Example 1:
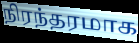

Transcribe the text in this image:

நிரந்தரமாக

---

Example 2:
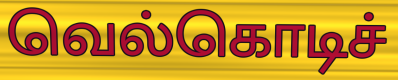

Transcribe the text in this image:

வெல்கொடிச்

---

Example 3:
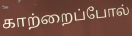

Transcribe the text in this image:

காற்றைப்போல்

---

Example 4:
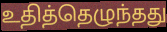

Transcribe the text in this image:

உதித்தெழுந்தது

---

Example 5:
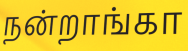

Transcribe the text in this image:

நன்றாங்கா